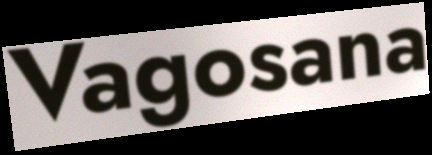
Vagosana